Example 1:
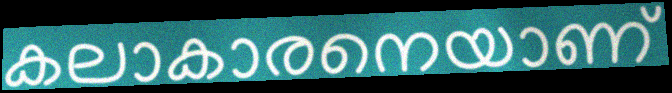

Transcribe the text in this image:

കലാകാരനെയാണ്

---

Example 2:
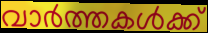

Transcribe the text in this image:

വാർത്തകൾക്ക്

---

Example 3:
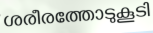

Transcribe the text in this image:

ശരീരത്തോടുകൂടി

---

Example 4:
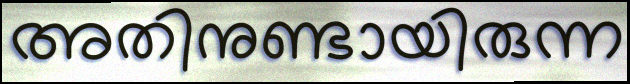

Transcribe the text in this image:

അതിനുണ്ടായിരുന്ന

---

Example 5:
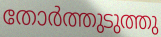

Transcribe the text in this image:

തോർത്തുടുത്തു